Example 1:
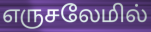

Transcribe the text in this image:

எருசலேமில்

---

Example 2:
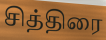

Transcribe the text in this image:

சித்திரை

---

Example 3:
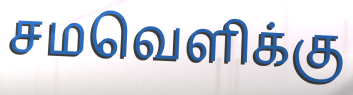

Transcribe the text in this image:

சமவெளிக்கு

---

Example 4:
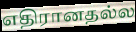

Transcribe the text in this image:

எதிரானதல்ல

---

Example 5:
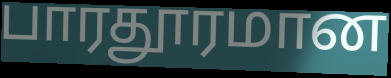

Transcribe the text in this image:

பாரதூரமான